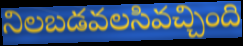
నిలబడవలసివచ్చింది